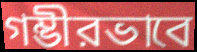
গম্ভীরভাবে